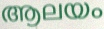
ആലയം